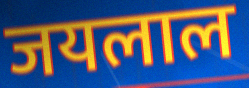
जयलाल